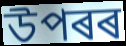
উপৰৰ